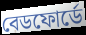
বেডফোর্ডে